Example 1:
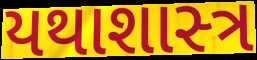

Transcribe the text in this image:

યથાશાસ્‍ત્ર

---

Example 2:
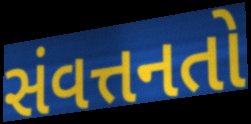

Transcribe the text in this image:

સંવત્તનતો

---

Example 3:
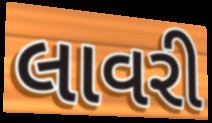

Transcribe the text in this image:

લાવરી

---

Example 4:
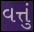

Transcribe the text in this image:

વત્તું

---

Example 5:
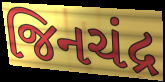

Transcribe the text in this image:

જિનચંદ્ર